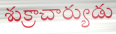
శుక్రాచార్యుడు